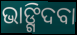
ଭାଙ୍ଗିଦବା